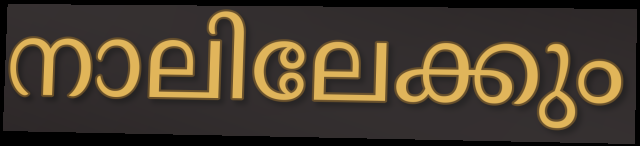
നാലിലേക്കും